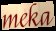
meka